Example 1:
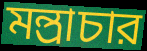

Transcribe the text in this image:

মন্ত্রাচার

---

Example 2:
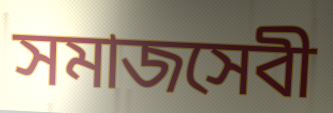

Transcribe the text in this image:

সমাজসেবী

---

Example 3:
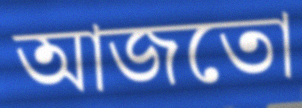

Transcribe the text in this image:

আজতো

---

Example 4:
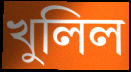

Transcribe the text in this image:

খুলিল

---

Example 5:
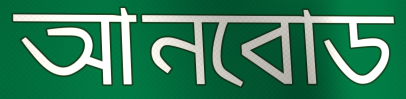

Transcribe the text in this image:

আনবোড